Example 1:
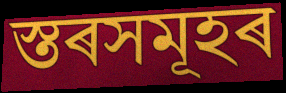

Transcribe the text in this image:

স্তৰসমূহৰ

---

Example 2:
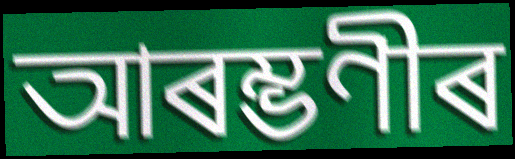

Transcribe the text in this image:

আৰম্ভণীৰ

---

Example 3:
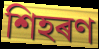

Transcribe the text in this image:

শিহৰণ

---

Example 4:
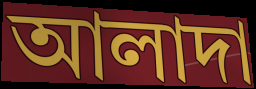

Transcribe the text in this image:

আলাদা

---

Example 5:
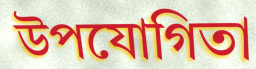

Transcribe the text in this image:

উপযোগিতা